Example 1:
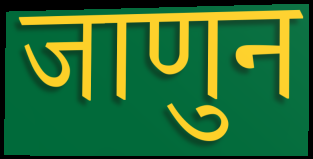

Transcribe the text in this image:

जाणुन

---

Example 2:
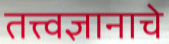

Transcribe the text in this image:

तत्त्वज्ञानाचे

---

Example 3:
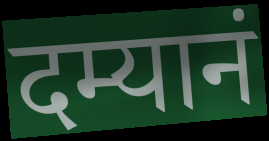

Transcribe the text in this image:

दम्यानं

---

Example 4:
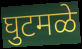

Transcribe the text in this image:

घुटमळे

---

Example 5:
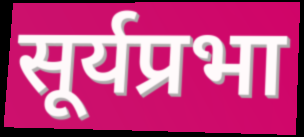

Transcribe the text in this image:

सूर्यप्रभा